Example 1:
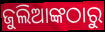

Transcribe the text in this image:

ଜୁଲିଆଙ୍କଠାରୁ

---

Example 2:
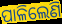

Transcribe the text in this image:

ପାଳିଲେଣି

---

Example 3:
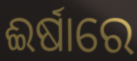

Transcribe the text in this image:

ଈର୍ଷାରେ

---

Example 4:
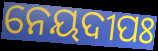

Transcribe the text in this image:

ନେୟଦୀପଃ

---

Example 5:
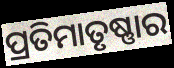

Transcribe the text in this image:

ପ୍ରତିମାତୃଷ୍ଣାର